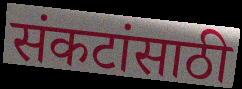
संकटांसाठी